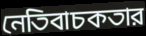
নেতিবাচকতার